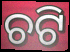
ଚଟି